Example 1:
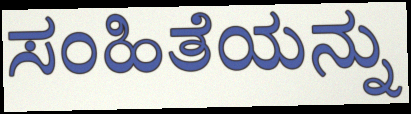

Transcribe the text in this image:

ಸಂಹಿತೆಯನ್ನು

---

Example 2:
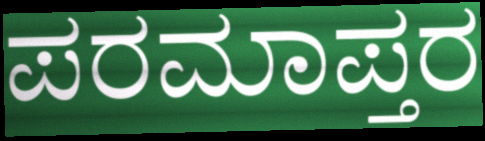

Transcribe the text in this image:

ಪರಮಾಪ್ತರ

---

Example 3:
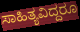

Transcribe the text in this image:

ಸಾಹಿತ್ಯವಿದ್ದರೂ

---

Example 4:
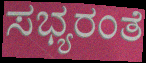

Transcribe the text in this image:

ಸಭ್ಯರಂತೆ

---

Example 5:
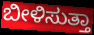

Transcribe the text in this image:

ಬೀಳಿಸುತ್ತಾ